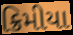
ક્રિમીયા